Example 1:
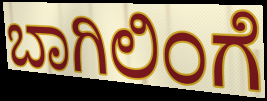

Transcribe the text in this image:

ಬಾಗಿಲಿಂಗೆ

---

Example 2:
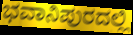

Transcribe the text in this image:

ಭವಾನಿಪುರದಲ್ಲಿ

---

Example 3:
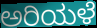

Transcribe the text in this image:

ಅರಿಯಳೆ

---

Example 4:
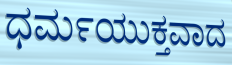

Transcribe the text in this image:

ಧರ್ಮಯುಕ್ತವಾದ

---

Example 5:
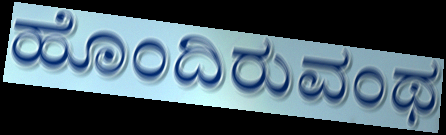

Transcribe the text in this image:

ಹೊಂದಿರುವಂಥ